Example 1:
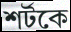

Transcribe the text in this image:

শর্টকে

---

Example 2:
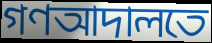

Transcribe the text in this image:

গণআদালতে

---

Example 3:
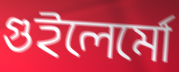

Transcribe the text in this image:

গুইলের্মো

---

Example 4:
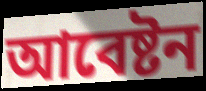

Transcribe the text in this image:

আবেষ্টন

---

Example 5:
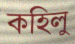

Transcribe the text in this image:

কহিলু